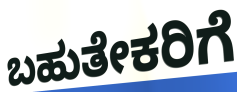
ಬಹುತೇಕರಿಗೆ